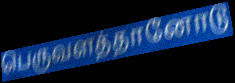
பெருவளத்தானோடு